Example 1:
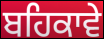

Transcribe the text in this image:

ਬਹਿਕਾਵੇ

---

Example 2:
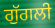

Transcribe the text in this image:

ਗੁੱਗਲੀ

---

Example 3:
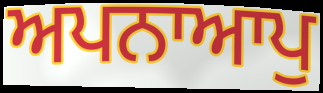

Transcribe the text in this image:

ਅਪਨਾਆਪੁ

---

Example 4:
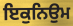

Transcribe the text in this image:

ਇਕੁਨਿਉਮ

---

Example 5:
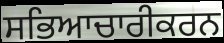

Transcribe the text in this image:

ਸਭਿਆਚਾਰੀਕਰਨ